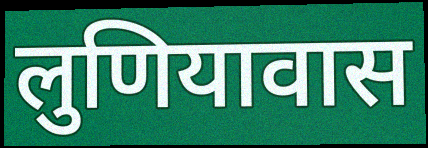
लुणियावास